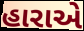
હારાએ